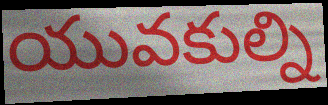
యువకుల్ని